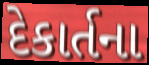
દેકાર્તના